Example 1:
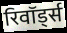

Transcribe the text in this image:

रिवॉर्ड्स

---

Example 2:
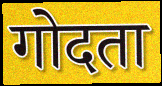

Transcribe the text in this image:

गोदता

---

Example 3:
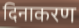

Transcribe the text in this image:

दिनाकरण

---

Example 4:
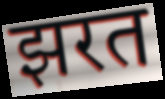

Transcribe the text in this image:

झरत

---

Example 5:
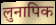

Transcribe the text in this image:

लुनापिक